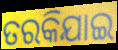
ତରକିଯାଇ